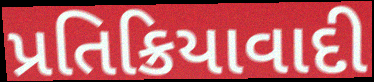
પ્રતિક્રિયાવાદી